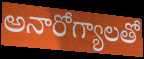
అనారోగ్యాలతో